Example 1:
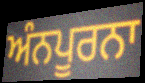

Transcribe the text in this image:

ਅੰਨਪੂਰਨਾ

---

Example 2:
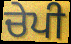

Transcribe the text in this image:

ਚੇਪੀ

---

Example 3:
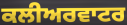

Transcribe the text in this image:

ਕਲੀਅਰਵਾਟਰ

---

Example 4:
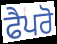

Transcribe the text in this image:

ਫੈਪਰੋ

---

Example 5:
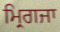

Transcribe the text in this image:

ਮ੍ਰਿਗਜਾ